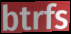
btrfs